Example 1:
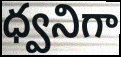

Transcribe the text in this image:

ధ్వనిగా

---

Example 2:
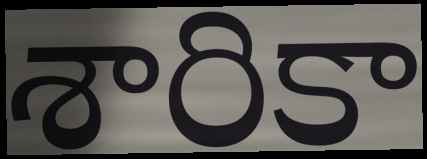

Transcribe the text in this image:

శారికా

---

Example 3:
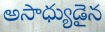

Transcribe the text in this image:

అసాధ్యుడైన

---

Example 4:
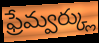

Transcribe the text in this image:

ఫ్రేమ్వర్క్లు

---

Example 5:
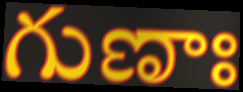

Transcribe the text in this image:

గుణాః